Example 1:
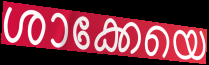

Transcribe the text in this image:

ശാക്കേയെ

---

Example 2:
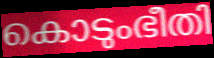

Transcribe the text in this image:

കൊടുംഭീതി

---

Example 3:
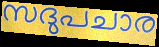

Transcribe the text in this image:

സദുപചാര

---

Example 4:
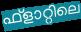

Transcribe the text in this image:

ഫ്ളാറ്റിലെ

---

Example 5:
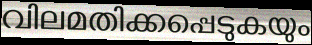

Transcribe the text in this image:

വിലമതിക്കപ്പെടുകയും